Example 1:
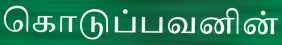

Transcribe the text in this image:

கொடுப்பவனின்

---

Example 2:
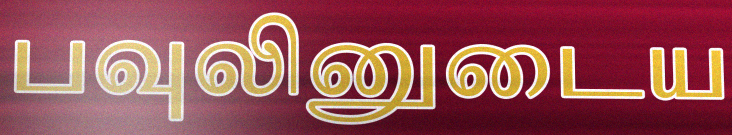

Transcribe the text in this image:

பவுலினுடைய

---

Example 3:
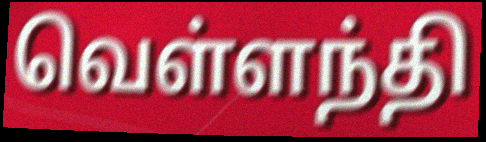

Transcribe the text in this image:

வெள்ளந்தி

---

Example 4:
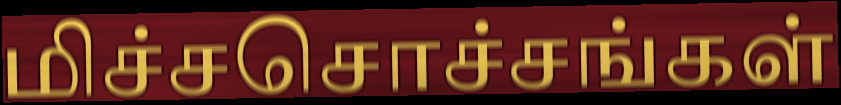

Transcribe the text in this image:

மிச்சசொச்சங்கள்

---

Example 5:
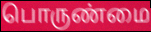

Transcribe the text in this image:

பொருண்மை